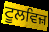
ਟੂਲਵਿਜ਼